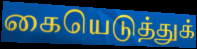
கையெடுத்துக்